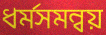
ধর্মসমন্বয়